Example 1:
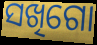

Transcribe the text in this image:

ସଖିଗୋ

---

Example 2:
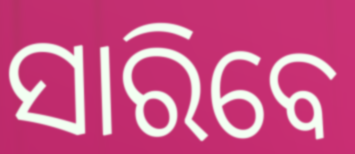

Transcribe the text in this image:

ସାରିବେ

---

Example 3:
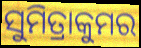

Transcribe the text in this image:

ସୁମିତ୍ରାକୁମର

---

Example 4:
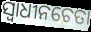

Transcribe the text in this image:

ସ୍ବାଧୀନଚେତା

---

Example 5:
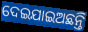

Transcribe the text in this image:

ଦେଇଯାଇଅଛନ୍ତି